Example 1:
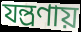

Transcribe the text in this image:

যন্ত্রণায়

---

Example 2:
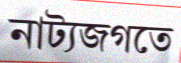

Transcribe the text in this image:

নাট্যজগতে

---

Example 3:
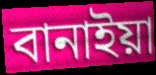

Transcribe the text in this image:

বানাইয়া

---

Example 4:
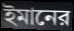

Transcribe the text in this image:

ইমানের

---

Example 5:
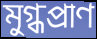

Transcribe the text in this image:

মুগ্ধপ্রাণ